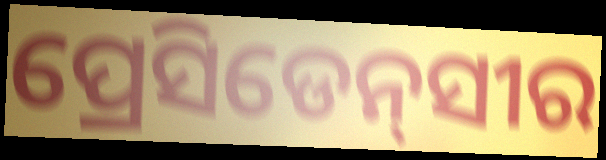
ପ୍ରେସିଡେନ୍‌ସୀର